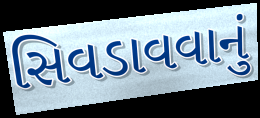
સિવડાવવાનું